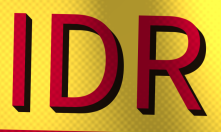
IDR